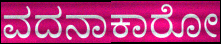
ವದನಾಕಾರೋ